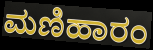
ಮಣಿಹಾರಂ